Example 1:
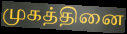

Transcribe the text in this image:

முகத்தினை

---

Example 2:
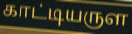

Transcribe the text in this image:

காட்டியருள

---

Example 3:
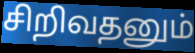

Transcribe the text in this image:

சிறிவதனும்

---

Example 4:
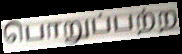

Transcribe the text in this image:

பொறுப்பற்ற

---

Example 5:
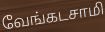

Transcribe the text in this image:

வேங்கடசாமி